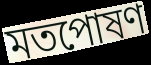
মতপোষণ